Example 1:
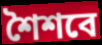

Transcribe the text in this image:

শৈশবে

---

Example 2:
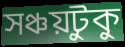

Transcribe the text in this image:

সঞ্চয়টুকু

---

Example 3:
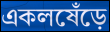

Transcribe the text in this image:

একলষেঁড়ে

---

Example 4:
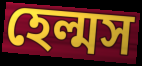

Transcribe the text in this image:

হেল্মস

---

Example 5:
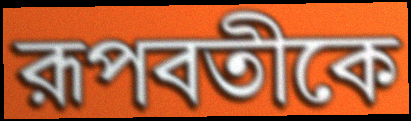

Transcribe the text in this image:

রূপবতীকে